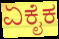
ಏಕೈಕ